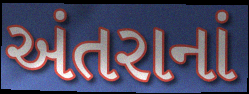
અંતરાનાં